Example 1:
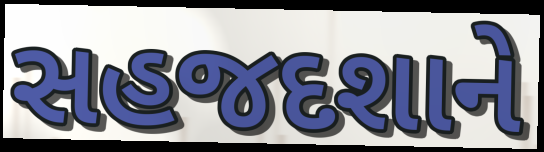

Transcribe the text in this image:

સહજદશાને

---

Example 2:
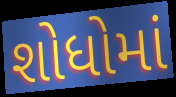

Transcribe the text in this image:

શોધોમાં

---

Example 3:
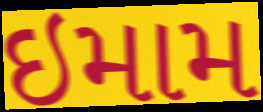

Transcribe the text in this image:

ઇમામ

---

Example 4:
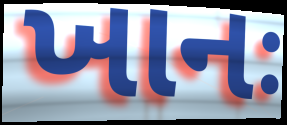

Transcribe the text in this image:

ખાનઃ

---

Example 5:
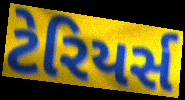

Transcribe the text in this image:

ટેરિયર્સ